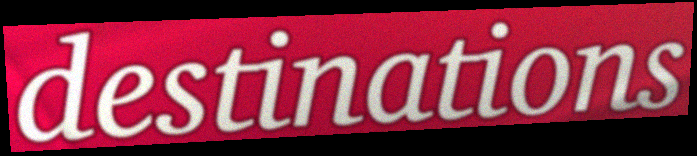
destinations